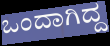
ಒಂದಾಗಿದ್ದ